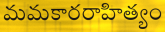
మమకారరాహిత్యం